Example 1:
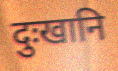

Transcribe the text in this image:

दुःखानि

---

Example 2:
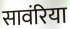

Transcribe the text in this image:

सावंरिया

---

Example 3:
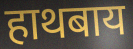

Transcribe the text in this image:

हाथबाय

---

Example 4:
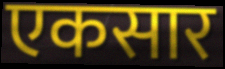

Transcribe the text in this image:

एकसार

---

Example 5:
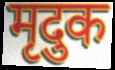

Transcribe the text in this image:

मृदुक